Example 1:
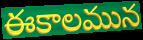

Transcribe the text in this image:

ఈకాలమున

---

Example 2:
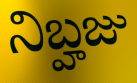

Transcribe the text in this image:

నిబ్హజు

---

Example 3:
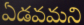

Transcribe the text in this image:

ఏడవమని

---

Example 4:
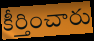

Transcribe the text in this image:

కీర్తించారు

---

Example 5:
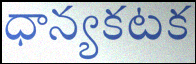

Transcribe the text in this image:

ధాన్యకటక